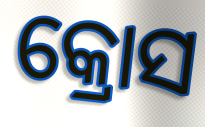
କ୍ରୋସ